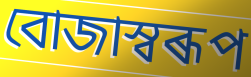
বোজাস্বৰূপ